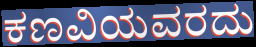
ಕಣವಿಯವರದು